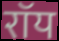
रॉय